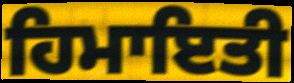
ਹਿਮਾਇਤੀ